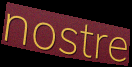
nostre